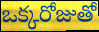
ఒక్కరోజుతో